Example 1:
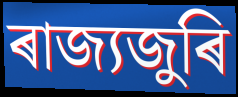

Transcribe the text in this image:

ৰাজ্যজুৰি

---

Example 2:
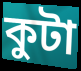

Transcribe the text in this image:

কুটা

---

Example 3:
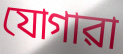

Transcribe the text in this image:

যোগাৱা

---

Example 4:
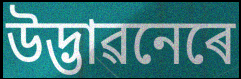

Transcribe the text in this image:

উদ্ভাৱনেৰে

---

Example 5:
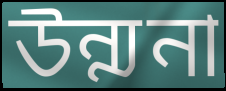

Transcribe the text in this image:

উন্মনা